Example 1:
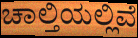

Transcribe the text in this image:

ಚಾಲ್ತಿಯಲ್ಲಿವೆ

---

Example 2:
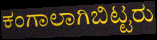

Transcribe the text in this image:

ಕಂಗಾಲಾಗಿಬಿಟ್ಟರು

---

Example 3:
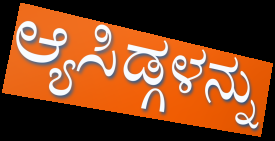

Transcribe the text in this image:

ಆ್ಯಸಿಡ್ಗಳನ್ನು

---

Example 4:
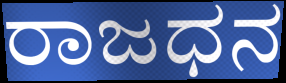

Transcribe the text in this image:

ರಾಜಧನ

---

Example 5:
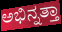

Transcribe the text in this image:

ಅಭಿನ್ನತ್ತಾ